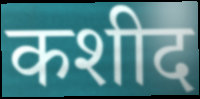
कशीद